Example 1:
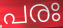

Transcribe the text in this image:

പരഃ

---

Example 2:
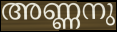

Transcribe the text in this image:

അണ്ണനു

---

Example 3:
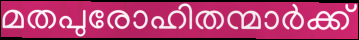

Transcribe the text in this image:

മതപുരോഹിതന്മാർക്ക്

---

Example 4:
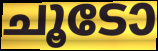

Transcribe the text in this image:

ചൂടോ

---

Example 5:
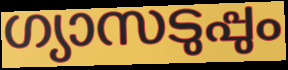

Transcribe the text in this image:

ഗ്യാസടുപ്പും